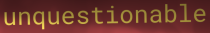
unquestionable